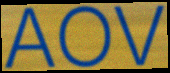
AOV